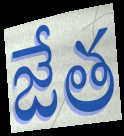
జేత